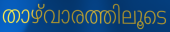
താഴ്‌വാരത്തിലൂടെ